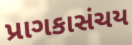
પ્રાગકાસંચય